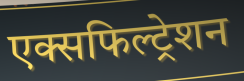
एक्सफिल्ट्रेशन